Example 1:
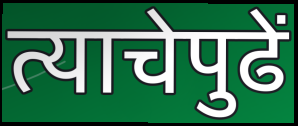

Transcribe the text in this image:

त्याचेपुढें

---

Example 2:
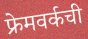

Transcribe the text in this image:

फ्रेमवर्कची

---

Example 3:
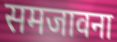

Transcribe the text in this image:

समजावना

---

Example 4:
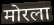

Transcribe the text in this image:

मोरला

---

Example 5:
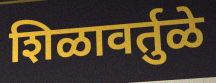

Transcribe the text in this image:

शिळावर्तुळे